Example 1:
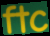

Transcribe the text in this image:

ftc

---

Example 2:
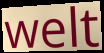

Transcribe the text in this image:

welt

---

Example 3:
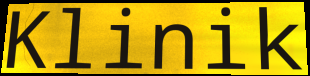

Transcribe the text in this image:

Klinik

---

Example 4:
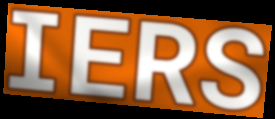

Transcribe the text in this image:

IERS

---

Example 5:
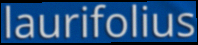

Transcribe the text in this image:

laurifolius